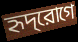
হৃদ্‌রোগে